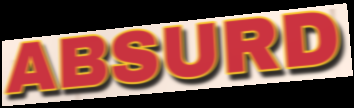
ABSURD